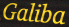
Galiba